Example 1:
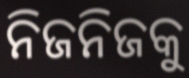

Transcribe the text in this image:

ନିଜନିଜକୁ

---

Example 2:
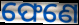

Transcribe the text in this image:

ଫେଣେ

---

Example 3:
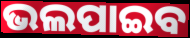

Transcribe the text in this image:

ଭଲପାଇବ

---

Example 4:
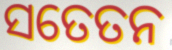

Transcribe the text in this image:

ସତେତନ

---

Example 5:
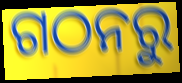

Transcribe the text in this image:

ଗଠନରୁ